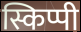
स्किप्पी